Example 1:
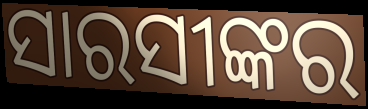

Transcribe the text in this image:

ସାରସୀଙ୍କର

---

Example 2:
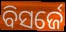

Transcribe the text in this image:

ବିସର୍ଜେ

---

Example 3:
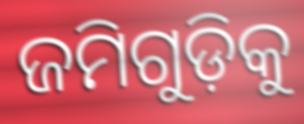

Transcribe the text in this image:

ଜମିଗୁଡ଼ିକୁ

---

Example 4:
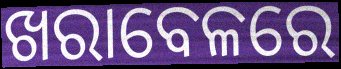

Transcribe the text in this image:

ଖରାବେଳରେ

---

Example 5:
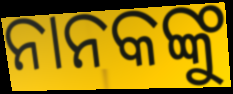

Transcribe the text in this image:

ନାନକଙ୍କୁ